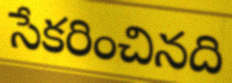
సేకరించినది